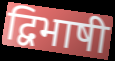
द्विभाषी